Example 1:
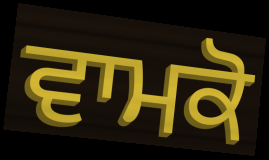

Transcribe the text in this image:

ਵਾਮਕੋ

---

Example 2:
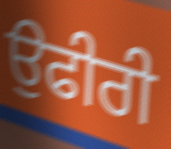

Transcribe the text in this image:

ਉਫੀਰੀ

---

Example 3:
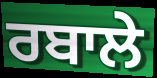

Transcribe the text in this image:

ਰਬਾਲੇ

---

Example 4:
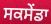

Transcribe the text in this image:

ਸਕਸੇਂਡਾ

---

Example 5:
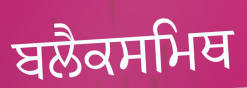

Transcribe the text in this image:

ਬਲੈਕਸਮਿਥ